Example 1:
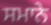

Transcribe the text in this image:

ਸਮਾਨੇ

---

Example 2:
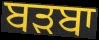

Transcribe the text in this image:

ਬੜਬਾ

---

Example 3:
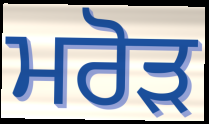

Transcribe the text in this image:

ਮਰੋੜ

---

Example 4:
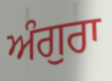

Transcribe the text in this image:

ਅੰਗੁਰਾ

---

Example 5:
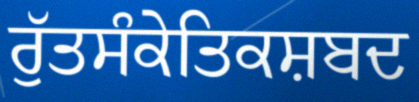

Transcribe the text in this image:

ਰੁੱਤਸੰਕੇਤਿਕਸ਼ਬਦ